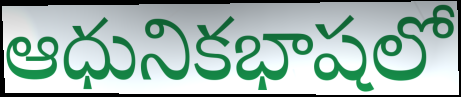
ఆధునికభాషలో